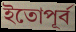
ইতোপূর্ব